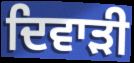
ਦਿਵਾੜੀ